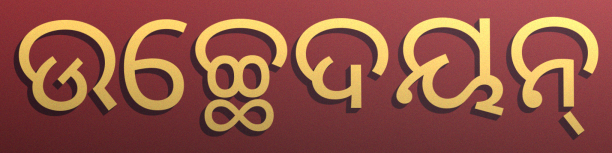
ଉଚ୍ଛେଦୟନ୍